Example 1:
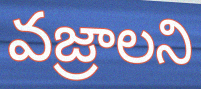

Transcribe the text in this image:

వజ్రాలని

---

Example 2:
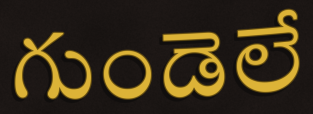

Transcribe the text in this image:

గుండెలే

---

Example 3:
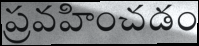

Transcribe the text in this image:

ప్రవహించడం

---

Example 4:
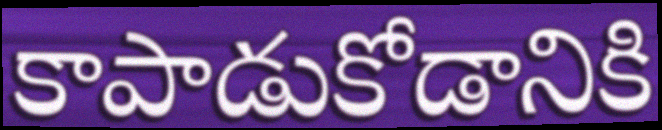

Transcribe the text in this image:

కాపాడుకోడానికి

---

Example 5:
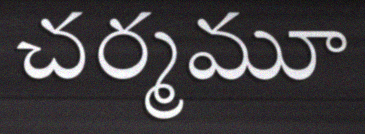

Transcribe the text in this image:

చర్మమూ